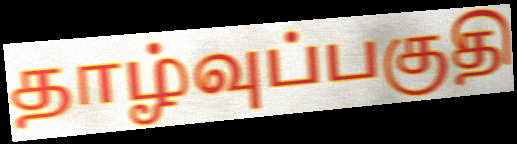
தாழ்வுப்பகுதி